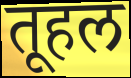
तूहल